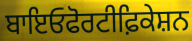
ਬਾਇਓਫੋਰਟੀਫ਼ਿਕੇਸ਼ਨ